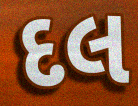
દલ